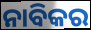
ନାବିକର